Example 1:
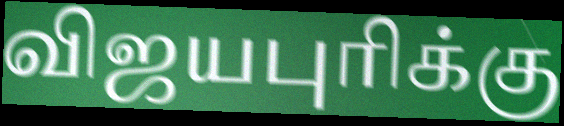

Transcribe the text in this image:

விஜயபுரிக்கு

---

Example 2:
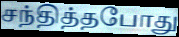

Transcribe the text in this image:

சந்தித்தபோது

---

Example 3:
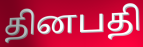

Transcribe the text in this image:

தினபதி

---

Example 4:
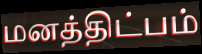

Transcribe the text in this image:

மனத்திட்பம்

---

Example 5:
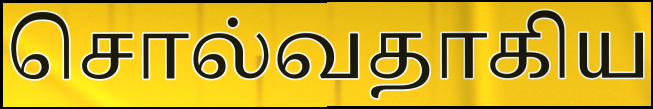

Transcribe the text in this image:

சொல்வதாகிய